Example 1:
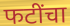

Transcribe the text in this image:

फटींचा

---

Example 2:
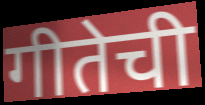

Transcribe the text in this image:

गीतेची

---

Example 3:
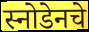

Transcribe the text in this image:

स्नोडेनचे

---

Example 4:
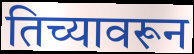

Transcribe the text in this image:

तिच्यावरून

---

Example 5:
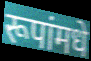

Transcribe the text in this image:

रूपांमधे